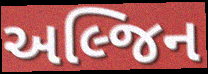
અલ્જિન